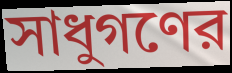
সাধুগণের